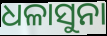
ଧଳାସୁନା